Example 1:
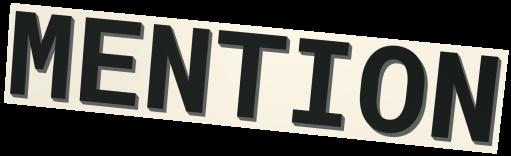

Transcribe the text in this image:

MENTION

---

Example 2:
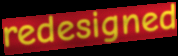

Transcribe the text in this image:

redesigned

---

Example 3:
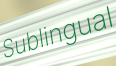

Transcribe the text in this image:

Sublingual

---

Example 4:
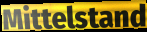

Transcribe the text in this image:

Mittelstand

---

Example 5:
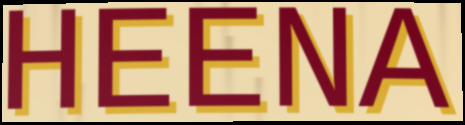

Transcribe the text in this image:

HEENA